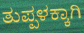
ತುಪ್ಪಳಕ್ಕಾಗಿ